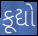
કૂદ્યો